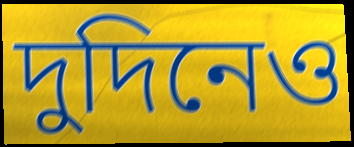
দুদিনেও